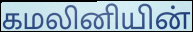
கமலினியின்